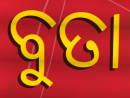
ବୁତା